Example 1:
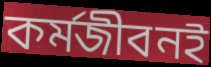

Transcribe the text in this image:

কর্মজীবনই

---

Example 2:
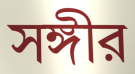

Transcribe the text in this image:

সঙ্গীর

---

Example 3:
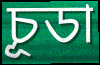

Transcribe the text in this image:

চূডা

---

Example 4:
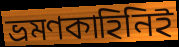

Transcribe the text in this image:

ভ্রমণকাহিনিই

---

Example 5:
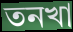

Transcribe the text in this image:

তনখা